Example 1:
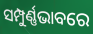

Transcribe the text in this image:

ସମ୍ପୁର୍ଣ୍ଣଭାବରେ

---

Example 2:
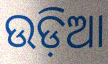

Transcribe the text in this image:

ଉଡ଼ିଆ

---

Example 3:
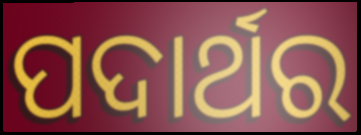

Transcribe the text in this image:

ପଦାର୍ଥର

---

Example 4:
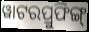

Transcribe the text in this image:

ୱାଟରପ୍ରୁଫିଙ୍ଗ୍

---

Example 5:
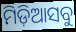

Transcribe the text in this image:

ମିଡ଼ିଆସବୁ